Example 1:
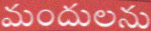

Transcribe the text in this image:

మందులను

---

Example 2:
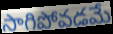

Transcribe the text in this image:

సాగిపోవడమే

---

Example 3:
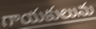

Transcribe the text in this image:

గాయకులును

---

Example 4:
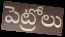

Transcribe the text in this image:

పెట్రోలు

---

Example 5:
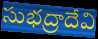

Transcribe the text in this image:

సుభద్రాదేవి